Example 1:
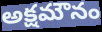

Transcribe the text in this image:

అక్షమౌనం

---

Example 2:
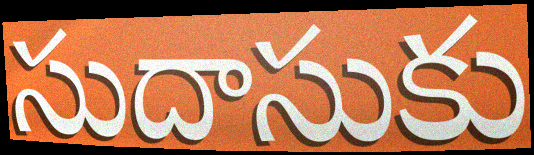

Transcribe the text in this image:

సుదాసుకు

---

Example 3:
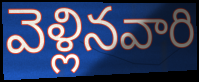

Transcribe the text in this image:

వెళ్లినవారి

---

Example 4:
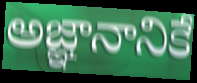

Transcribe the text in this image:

అజ్ఞానానికే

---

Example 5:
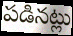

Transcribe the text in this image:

పడినట్లు